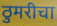
ठुमरीचा